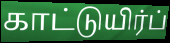
காட்டுயிர்ப்